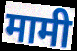
मामी